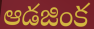
ఆడజింక